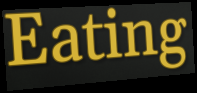
Eating